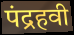
पंद्रहवी